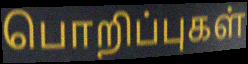
பொறிப்புகள்